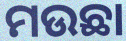
ମଉଛା